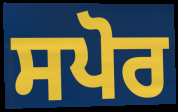
ਸਪੋਰ